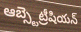
ఆబ్స్టెట్రీషియన్